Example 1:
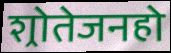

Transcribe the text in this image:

श्रोतेजनहो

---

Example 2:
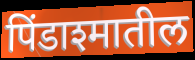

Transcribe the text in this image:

पिंडाश्मातील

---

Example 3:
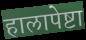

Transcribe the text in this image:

हालापेष्टा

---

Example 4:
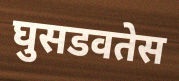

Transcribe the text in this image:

घुसडवतेस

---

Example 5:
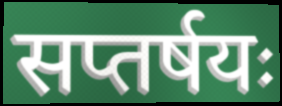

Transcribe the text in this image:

सप्तर्षयः